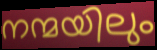
നന്മയിലും